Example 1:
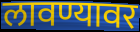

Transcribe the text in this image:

लावण्यावर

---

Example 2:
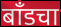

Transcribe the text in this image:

बाँडचा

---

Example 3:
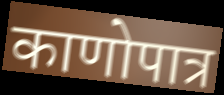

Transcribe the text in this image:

काणोपात्र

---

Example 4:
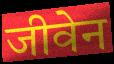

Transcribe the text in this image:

जीवेन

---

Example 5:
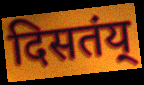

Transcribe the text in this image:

दिसतंय्